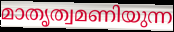
മാതൃത്വമണിയുന്ന